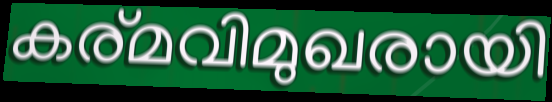
കര്മവിമുഖരായി